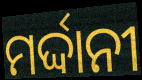
ମର୍ଦ୍ଦାନୀ